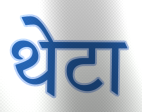
थेटा